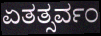
ಏತತ್ಸರ್ವಂ